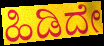
ಹಿಡಿದೇ